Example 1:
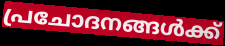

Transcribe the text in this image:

പ്രചോദനങ്ങൾക്ക്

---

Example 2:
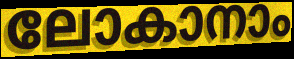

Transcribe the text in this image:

ലോകാനാം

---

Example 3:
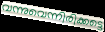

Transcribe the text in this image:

വന്നുവെന്നിരിക്കട്ടെ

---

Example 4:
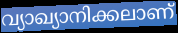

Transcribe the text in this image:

വ്യാഖ്യാനിക്കലാണ്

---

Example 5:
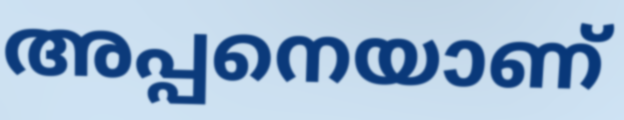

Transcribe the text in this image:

അപ്പനെയാണ്